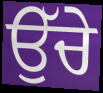
ਉੱਚੇ